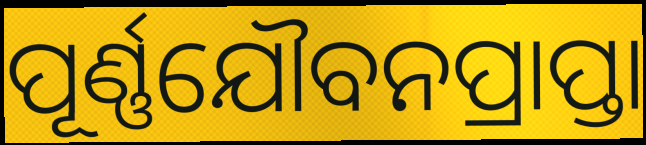
ପୂର୍ଣ୍ଣଯୌବନପ୍ରାପ୍ତା